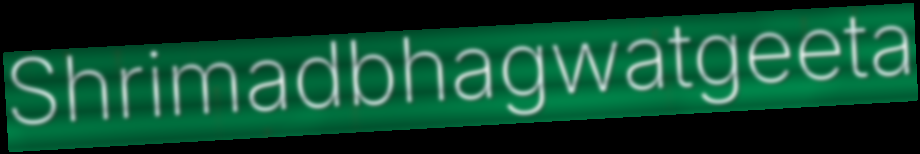
Shrimadbhagwatgeeta